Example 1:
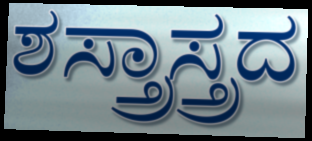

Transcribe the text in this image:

ಶಸ್ತ್ರಾಸ್ತ್ರದ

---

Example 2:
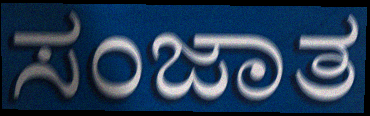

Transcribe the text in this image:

ಸಂಜಾತ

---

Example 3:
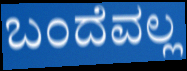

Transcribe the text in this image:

ಬಂದೆವಲ್ಲ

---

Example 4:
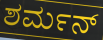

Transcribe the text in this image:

ಶರ್ಮನ್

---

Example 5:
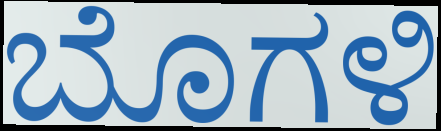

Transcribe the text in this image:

ಬೊಗಳಿ